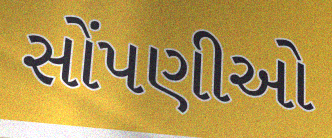
સોંપણીઓ